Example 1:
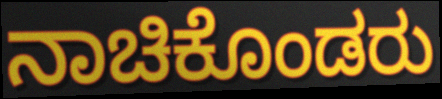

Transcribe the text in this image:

ನಾಚಿಕೊಂಡರು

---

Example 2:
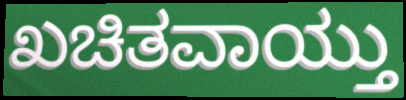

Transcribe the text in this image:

ಖಚಿತವಾಯ್ತು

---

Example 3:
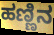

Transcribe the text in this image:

ಹಣ್ಣಿನ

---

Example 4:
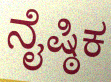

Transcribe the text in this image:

ನೈಷ್ಠಿಕ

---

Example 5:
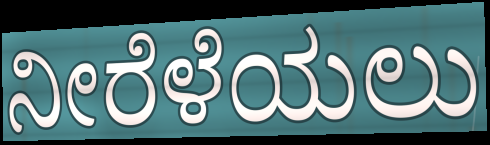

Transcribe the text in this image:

ನೀರೆಳೆಯಲು